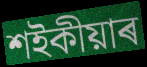
শইকীয়াৰ